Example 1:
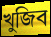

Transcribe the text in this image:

খুজিব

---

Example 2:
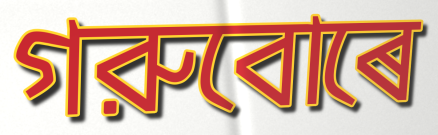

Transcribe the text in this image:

গৰুবোৰে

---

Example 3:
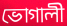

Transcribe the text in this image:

ভোগালী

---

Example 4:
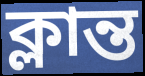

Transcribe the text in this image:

ক্লান্ত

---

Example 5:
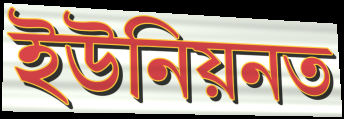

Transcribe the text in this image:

ইউনিয়নত